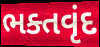
ભક્તવૃંદ